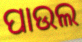
ପାଉଲ